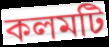
কলমটি